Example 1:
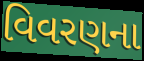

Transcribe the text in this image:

વિવરણના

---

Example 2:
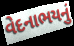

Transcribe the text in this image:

વેદનાભયનું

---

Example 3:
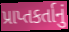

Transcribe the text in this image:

પ્રાપ્તકર્તાનું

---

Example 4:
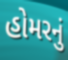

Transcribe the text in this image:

હોમરનું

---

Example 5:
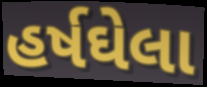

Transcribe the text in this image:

હર્ષઘેલા